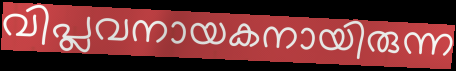
വിപ്ലവനായകനായിരുന്ന